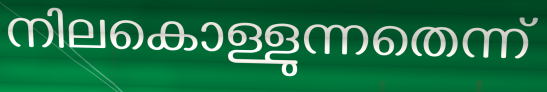
നിലകൊള്ളുന്നതെന്ന്